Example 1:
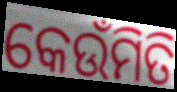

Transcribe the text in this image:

କେଉଁମିତି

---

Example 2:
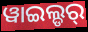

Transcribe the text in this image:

ୱାଇଲ୍ଡର୍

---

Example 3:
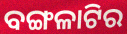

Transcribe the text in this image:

ବଙ୍ଗଳାଟିର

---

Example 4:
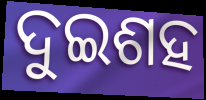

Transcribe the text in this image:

ଦୁଇଶହ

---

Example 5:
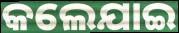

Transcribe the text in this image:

କଲେଯାଇ